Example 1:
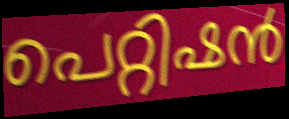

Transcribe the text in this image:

പെറ്റിഷൻ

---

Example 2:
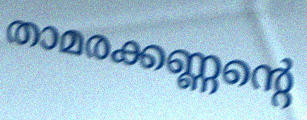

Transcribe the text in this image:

താമരക്കണ്ണന്റെ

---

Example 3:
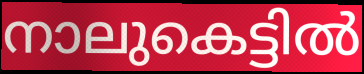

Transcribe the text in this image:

നാലുകെട്ടിൽ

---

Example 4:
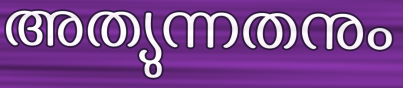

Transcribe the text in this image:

അത്യുന്നതനും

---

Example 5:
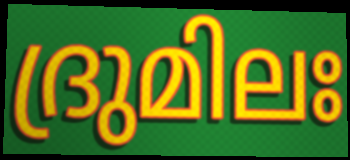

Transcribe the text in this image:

ദ്രുമിലഃ